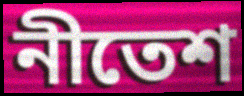
নীতেশ